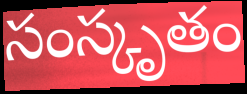
సంస్కృతం